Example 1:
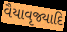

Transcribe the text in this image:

વૈયાવૃજ્યાદિ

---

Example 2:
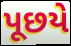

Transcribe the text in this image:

પૂછયે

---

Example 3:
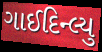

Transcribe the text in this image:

ગાઈદિન્લ્યુ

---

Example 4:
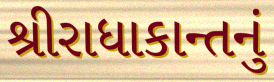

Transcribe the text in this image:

શ્રીરાધાકાન્તનું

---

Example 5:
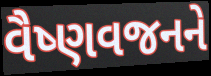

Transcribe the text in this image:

વૈષ્ણવજનને